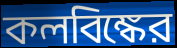
কলবিঙ্কের